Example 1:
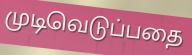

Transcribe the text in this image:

முடிவெடுப்பதை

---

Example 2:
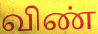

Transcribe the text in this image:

விண்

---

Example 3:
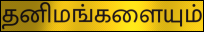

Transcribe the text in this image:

தனிமங்களையும்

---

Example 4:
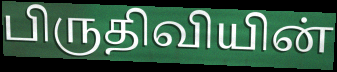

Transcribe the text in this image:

பிருதிவியின்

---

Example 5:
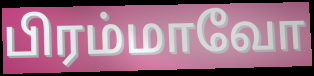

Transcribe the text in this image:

பிரம்மாவோ